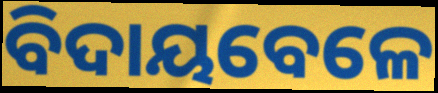
ବିଦାୟବେଳେ